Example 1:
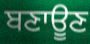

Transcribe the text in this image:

ਬਣਾਊਣ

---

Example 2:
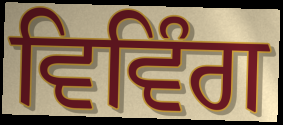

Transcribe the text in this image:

ਵਿਵਿੰਗ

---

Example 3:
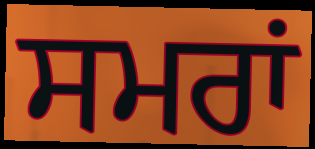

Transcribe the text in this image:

ਸਮਰਾਂ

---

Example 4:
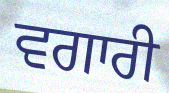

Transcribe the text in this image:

ਵਗਾਰੀ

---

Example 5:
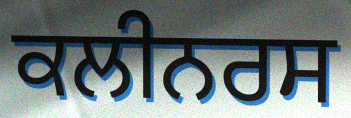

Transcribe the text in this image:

ਕਲੀਨਰਸ